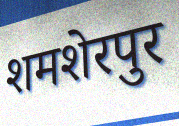
शमशेरपुर